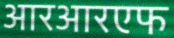
आरआरएफ